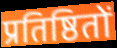
प्रतिष्ठितों